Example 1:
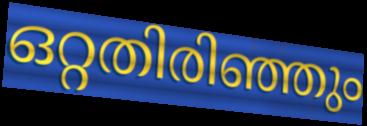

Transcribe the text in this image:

ഒറ്റതിരിഞ്ഞും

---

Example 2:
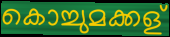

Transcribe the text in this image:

കൊച്ചുമക്കള്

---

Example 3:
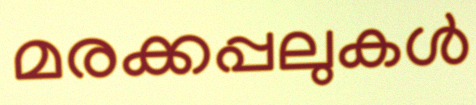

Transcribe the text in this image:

മരക്കപ്പലുകൾ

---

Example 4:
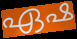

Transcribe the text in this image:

ഏഷ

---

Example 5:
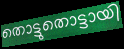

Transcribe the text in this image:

തൊട്ടുതൊട്ടായി